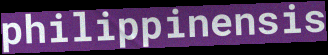
philippinensis